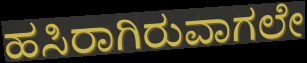
ಹಸಿರಾಗಿರುವಾಗಲೇ